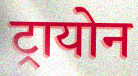
ट्रायोन